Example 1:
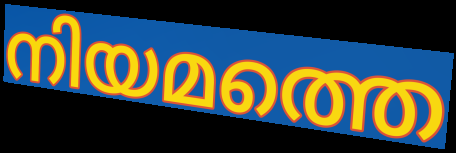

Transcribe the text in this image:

നിയമത്തെ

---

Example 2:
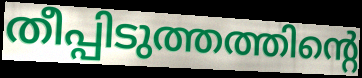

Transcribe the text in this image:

തീപ്പിടുത്തത്തിന്റെ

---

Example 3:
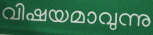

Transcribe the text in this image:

വിഷയമാവുന്നു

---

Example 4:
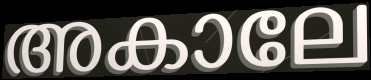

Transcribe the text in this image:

അകാലേ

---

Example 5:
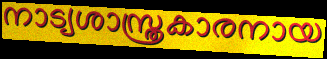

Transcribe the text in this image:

നാട്യശാസ്ത്രകാരനായ